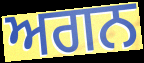
ਅਗਨ